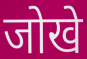
जोखे